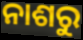
ନାଶରୁ